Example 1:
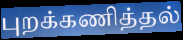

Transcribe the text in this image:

புறக்கணித்தல்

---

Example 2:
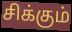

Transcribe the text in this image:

சிக்கும்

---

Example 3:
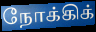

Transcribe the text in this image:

நோக்கிக்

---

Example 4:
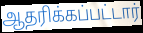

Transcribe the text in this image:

ஆதரிக்கப்பட்டார்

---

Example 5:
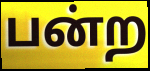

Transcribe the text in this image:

பன்ற